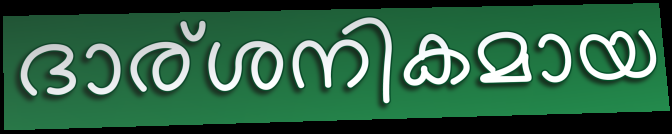
ദാര്ശനികമായ